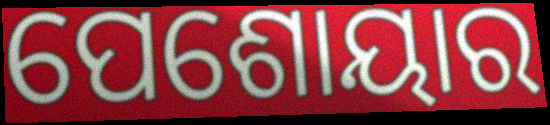
ପେଶୋୟାର